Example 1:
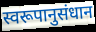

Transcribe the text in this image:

स्वरूपानुसंधान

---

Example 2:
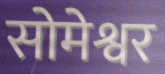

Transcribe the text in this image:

सोमेश्वर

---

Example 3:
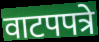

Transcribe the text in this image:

वाटपपत्रे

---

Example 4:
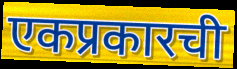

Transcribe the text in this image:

एकप्रकारची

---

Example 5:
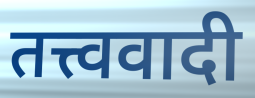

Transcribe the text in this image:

तत्त्ववादी